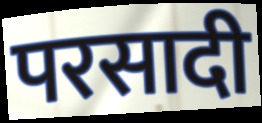
परसादी